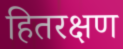
हितरक्षण